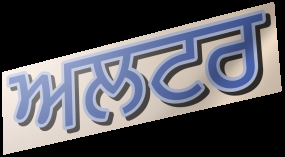
ਅਲਟਰ